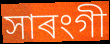
সাৰংগী